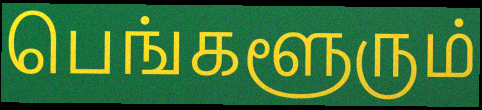
பெங்களூரும்